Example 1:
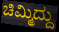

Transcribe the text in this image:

ಚಿಮ್ಮಿದ್ದು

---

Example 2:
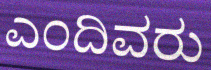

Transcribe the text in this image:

ಎಂದಿವರು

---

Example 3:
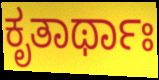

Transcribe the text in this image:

ಕೃತಾರ್ಥಾಃ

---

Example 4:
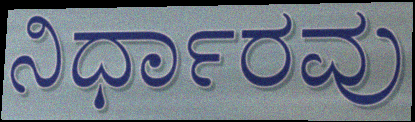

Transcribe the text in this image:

ನಿರ್ಧಾರವು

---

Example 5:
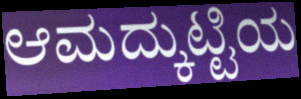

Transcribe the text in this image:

ಆಮದ್ಕುಟ್ಟಿಯ